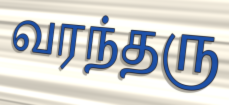
வரந்தரு